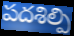
పదశిల్పి